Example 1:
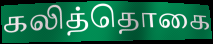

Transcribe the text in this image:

கலித்தொகை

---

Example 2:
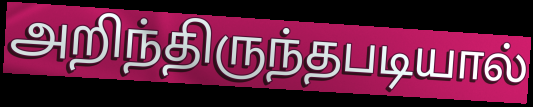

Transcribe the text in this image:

அறிந்திருந்தபடியால்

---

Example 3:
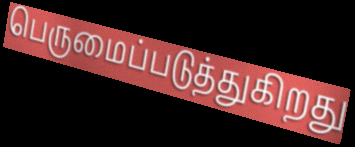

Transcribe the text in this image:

பெருமைப்படுத்துகிறது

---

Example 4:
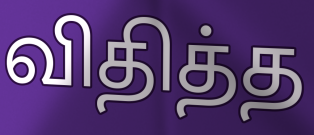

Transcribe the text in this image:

விதித்த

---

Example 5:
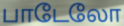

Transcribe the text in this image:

பாடேலோ